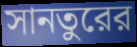
সানতুরের